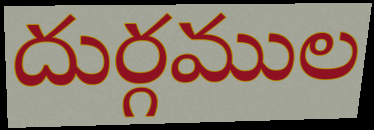
దుర్గముల